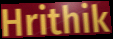
Hrithik